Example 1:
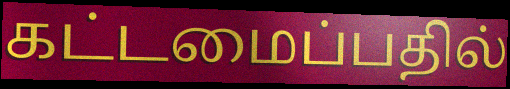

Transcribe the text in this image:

கட்டமைப்பதில்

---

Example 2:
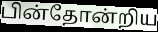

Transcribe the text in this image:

பின்தோன்றிய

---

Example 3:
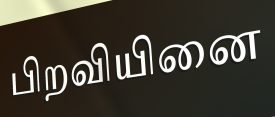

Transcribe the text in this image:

பிறவியினை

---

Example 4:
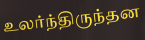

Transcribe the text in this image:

உலர்ந்திருந்தன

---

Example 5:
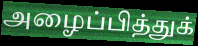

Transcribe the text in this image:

அழைப்பித்துக்